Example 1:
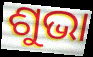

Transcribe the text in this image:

ଶୁଭା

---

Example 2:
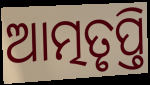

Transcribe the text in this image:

ଆତ୍ମତୃପ୍ତି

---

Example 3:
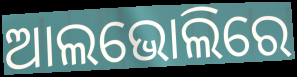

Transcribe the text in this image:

ଆଲଭୋଲିରେ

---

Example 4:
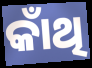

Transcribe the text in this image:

କାଁଥି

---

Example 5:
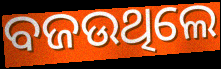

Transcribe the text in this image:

ବଜଉଥିଲେ